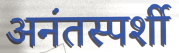
अनंतस्पर्शी